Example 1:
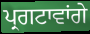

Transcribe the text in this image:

ਪ੍ਰਗਟਾਵਾਂਗੇ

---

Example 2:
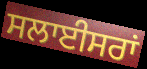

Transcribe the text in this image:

ਸਲਾਈਸਰਾਂ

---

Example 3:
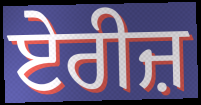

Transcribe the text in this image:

ਏਰੀਜ਼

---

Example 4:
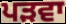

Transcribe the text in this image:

ਪੜਵਾ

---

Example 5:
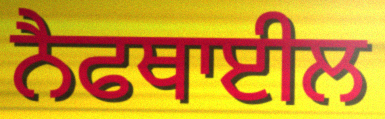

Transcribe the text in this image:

ਨੈਫਥਾਈਲ